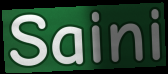
Saini